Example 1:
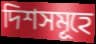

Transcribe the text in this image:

দিশসমূহে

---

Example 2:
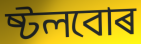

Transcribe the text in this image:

ষ্টলবোৰ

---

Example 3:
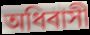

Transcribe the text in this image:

অধিবাসী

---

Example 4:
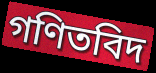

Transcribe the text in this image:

গণিতবিদ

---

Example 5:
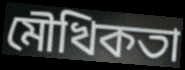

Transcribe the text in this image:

মৌখিকতা